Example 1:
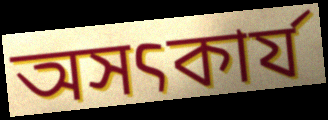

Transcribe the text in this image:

অসৎকার্য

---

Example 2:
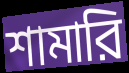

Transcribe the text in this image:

শামারি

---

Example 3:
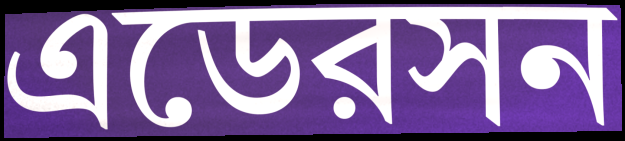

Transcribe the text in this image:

এডেরসন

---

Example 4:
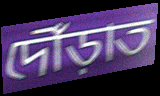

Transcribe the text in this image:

দৌঁড়াত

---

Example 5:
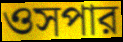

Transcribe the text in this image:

ওসপার